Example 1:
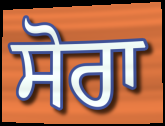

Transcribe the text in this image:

ਸੋਰਾ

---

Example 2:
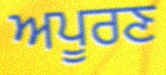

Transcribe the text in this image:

ਅਪੂਰਣ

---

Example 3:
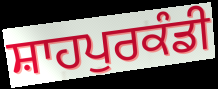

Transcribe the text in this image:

ਸ਼ਾਹਪੁਰਕੰਡੀ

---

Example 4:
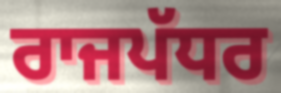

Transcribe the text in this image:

ਰਾਜਪੱਧਰ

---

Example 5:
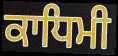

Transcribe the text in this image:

ਕਾਧਿਮੀ